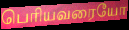
பெரியவரையோ